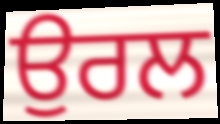
ਉਰਲ